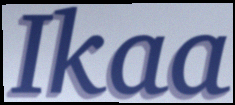
Ikaa